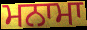
ਮਨਾਮਾ